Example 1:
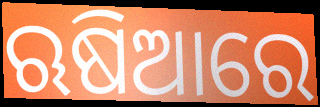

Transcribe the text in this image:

ଋଷିଆରେ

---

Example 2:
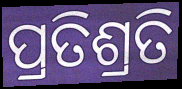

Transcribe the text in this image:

ପ୍ରତିଶ୍ରତି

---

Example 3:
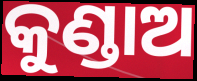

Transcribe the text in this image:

କୁଣ୍ଡାଅ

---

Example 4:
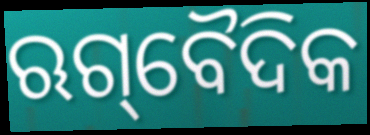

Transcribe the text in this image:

ଋଗ୍‌ବୈଦିକ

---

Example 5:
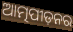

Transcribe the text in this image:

ଆତ୍ମପୀଡ଼ନର